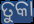
ତୁକା